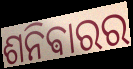
ଶନିଵାରର